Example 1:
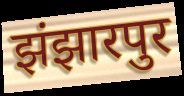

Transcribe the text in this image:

झंझारपुर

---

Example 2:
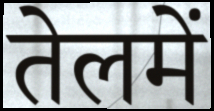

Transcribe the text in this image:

तेलमें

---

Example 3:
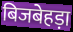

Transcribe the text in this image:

बिजबेहड़ा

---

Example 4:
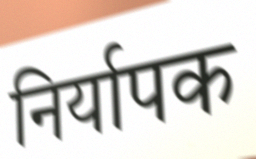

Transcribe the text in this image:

निर्यापक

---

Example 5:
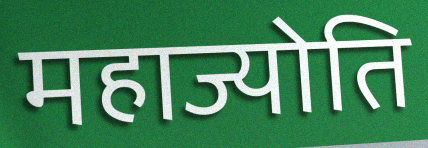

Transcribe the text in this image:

महाज्योति